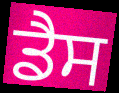
ਡੈਸ